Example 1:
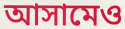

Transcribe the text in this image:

আসামেও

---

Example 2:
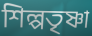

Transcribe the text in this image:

শিল্পতৃষ্ণা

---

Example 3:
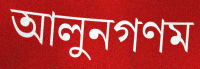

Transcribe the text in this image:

আলুনগণম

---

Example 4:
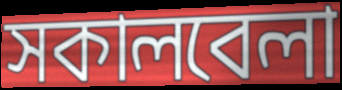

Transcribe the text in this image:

সকালবেলা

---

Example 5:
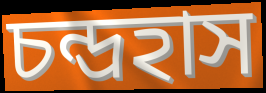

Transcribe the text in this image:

চন্দ্রহাস